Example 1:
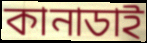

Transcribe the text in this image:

কানাডাই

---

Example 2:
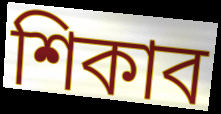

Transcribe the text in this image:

শিকাব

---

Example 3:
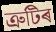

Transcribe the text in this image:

ত্ৰুটিৰ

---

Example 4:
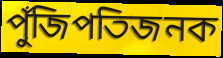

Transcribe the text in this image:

পুঁজিপতিজনক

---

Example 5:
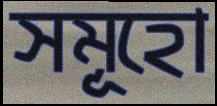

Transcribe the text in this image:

সমূহো